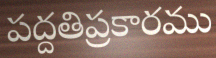
పద్దతిప్రకారము